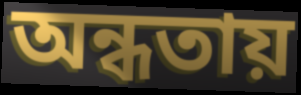
অন্ধতায়